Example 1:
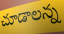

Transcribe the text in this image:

చూడాలన్న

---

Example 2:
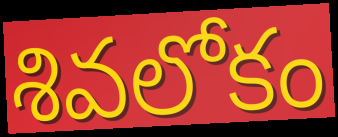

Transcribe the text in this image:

శివలోకం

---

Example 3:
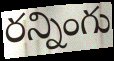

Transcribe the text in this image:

రన్నింగు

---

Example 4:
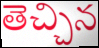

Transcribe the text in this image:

తెచ్చిన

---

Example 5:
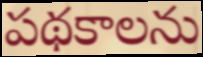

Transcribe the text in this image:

పథకాలను